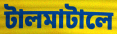
টালমাটালে